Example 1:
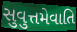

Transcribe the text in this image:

સુવુત્તમેવાતિ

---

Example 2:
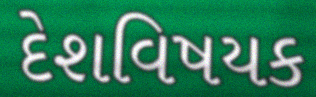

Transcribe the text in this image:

દેશવિષયક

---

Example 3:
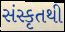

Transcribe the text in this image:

સંસ્કૃતથી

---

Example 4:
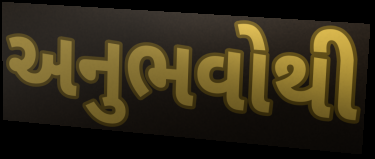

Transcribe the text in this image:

અનુભવોથી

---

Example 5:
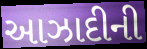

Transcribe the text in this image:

આઝાદીની